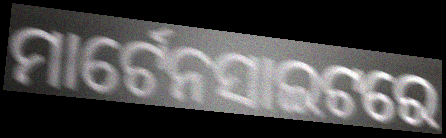
ମାର୍ଟେନସାଇଟରେ